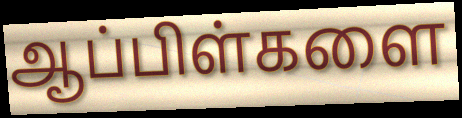
ஆப்பிள்களை